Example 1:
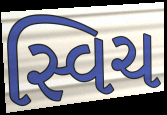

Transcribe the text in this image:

સ્વિચ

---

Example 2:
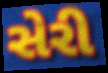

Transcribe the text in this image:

સેરી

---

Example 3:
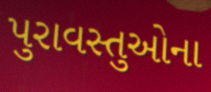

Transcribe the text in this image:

પુરાવસ્તુઓના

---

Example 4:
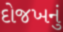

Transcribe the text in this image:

દોજખનું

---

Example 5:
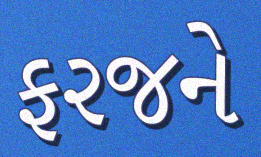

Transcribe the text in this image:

ફરજને